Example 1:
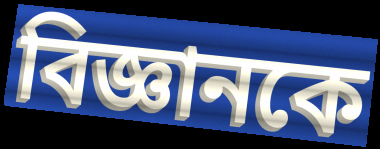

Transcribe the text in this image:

বিজ্ঞানকে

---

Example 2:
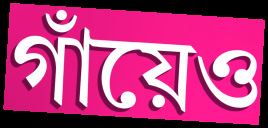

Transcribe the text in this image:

গাঁয়েও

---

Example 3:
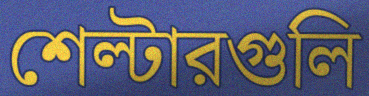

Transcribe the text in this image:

শেল্টারগুলি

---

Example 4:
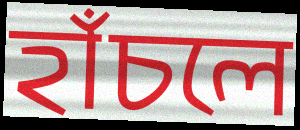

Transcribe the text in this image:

হাঁচলে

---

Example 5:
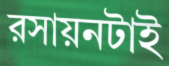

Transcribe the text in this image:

রসায়নটাই